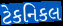
ટેકનિકલ